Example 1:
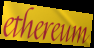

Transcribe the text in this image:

ethereum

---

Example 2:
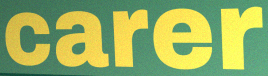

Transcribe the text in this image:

carer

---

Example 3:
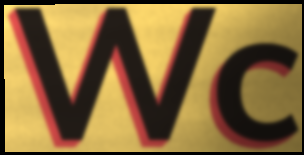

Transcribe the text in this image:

Wc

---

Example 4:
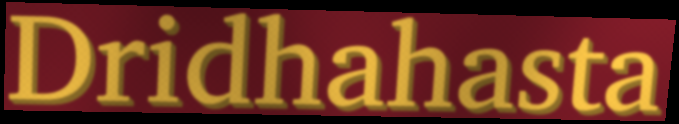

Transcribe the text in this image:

Dridhahasta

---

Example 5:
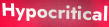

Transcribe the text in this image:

Hypocritical